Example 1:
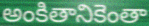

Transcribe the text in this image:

అంకితానికెంతా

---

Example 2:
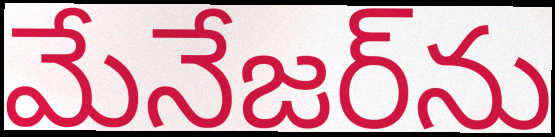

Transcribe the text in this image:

మేనేజర్‌ను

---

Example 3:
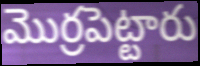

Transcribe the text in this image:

మొర్రపెట్టారు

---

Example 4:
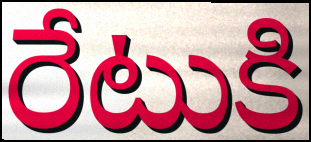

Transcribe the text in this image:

రేటుకి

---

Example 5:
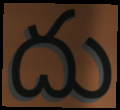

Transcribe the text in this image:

దు